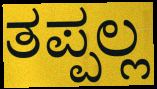
ತಪ್ಪಲ್ಲ